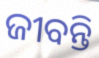
ଜୀବନ୍ତି